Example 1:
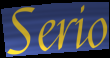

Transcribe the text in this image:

Serio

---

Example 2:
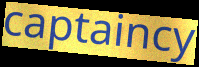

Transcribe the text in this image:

captaincy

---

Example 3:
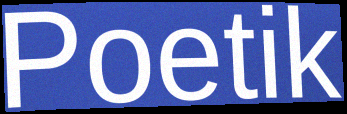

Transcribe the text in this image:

Poetik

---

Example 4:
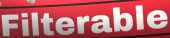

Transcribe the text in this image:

Filterable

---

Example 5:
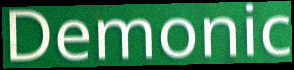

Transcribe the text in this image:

Demonic